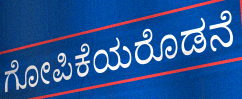
ಗೋಪಿಕೆಯರೊಡನೆ